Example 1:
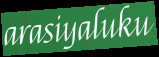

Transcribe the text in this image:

arasiyaluku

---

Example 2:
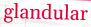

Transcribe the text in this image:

glandular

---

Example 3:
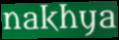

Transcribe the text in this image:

nakhya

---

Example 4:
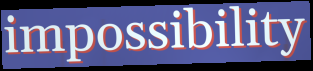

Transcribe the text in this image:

impossibility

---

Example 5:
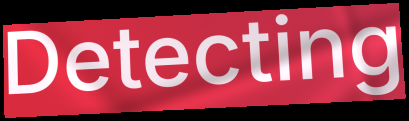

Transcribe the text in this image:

Detecting